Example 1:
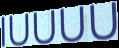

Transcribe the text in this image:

IUUUU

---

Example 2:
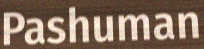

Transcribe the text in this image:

Pashuman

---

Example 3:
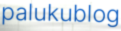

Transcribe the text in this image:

palukublog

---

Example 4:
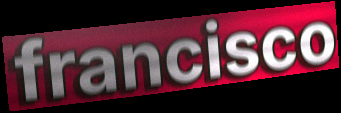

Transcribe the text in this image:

francisco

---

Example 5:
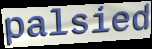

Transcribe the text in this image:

palsied